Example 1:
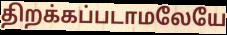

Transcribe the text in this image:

திறக்கப்படாமலேயே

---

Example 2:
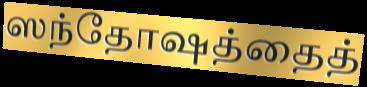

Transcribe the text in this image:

ஸந்தோஷத்தைத்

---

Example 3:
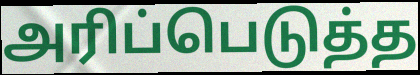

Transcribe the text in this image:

அரிப்பெடுத்த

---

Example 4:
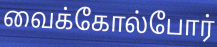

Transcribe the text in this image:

வைக்கோல்போர்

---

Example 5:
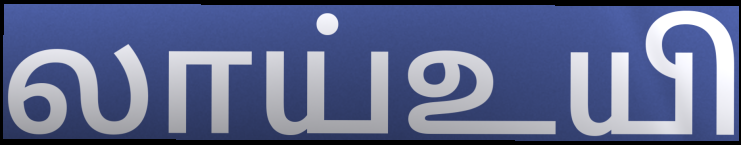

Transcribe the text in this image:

லாய்உயி